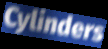
Cylinders